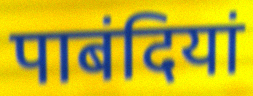
पाबंदियां